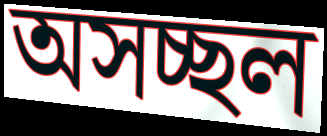
অসচ্ছল